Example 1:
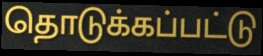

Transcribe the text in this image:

தொடுக்கப்பட்டு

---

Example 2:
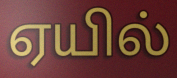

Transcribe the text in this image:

ஏயில்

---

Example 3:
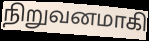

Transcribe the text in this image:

நிறுவனமாகி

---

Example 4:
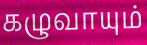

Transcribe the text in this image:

கழுவாயும்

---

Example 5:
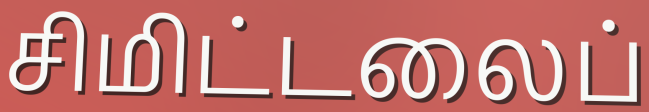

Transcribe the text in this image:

சிமிட்டலைப்